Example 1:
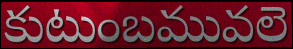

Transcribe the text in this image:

కుటుంబమువలె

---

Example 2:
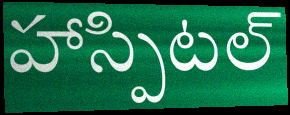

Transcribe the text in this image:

హాస్పిటల్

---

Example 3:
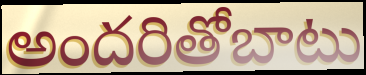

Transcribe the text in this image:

అందరితోబాటు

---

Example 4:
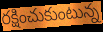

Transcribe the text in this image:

రక్షించుకుంటున్న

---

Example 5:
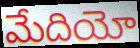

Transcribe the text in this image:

మేదియో